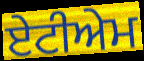
ਏਟੀਅੇਮ